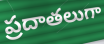
ప్రదాతలుగా